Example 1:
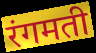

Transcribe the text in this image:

रंगमती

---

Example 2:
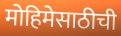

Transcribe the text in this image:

मोहिमेसाठीची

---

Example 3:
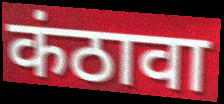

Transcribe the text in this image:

कंठावा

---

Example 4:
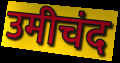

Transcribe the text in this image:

उमीचंद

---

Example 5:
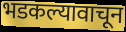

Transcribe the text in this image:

भडकल्यावाचून